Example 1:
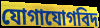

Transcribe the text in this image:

যোগাযোগবিদ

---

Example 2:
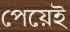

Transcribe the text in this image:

পেয়েই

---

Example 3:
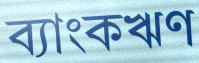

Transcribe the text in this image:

ব্যাংকঋণ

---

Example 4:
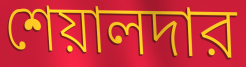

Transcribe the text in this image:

শেয়ালদার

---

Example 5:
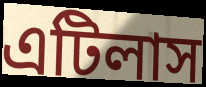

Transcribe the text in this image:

এটিলাস